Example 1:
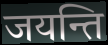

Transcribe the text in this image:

जयन्ति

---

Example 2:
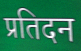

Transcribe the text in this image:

प्रतिदन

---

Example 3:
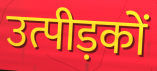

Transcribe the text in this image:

उत्पीड़कों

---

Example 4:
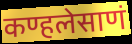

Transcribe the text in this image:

कण्हलेसाणं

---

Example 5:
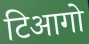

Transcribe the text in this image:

टिआगो